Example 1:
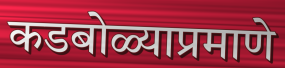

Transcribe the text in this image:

कडबोळ्याप्रमाणे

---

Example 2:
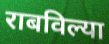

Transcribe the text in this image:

राबविल्या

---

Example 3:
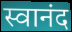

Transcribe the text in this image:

स्वानंद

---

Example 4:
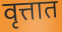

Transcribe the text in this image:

वृत्तात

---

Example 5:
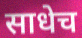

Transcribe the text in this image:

साधेच